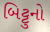
બિટ્ટુનો